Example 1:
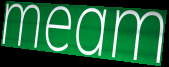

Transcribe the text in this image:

meam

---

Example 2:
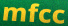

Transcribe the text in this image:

mfcc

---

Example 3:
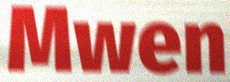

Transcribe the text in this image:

Mwen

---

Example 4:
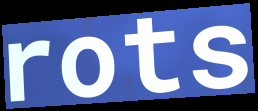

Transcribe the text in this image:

rots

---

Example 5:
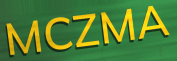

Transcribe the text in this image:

MCZMA